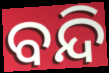
ବନ୍ଦି